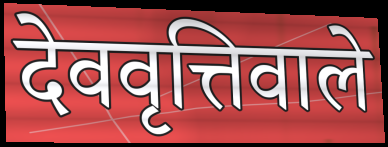
देववृत्तिवाले